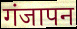
गंजापन